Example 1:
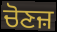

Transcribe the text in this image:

ਚੋਣਜ਼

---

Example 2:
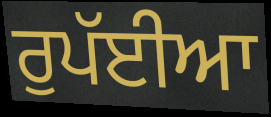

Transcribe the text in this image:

ਰੁਪੱਈਆ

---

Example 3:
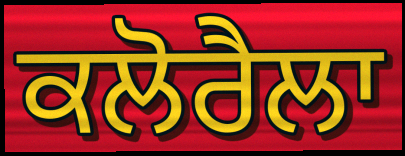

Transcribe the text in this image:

ਕਲੋਰੈਲਾ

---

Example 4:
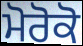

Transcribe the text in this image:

ਮੋਰੋਕੋ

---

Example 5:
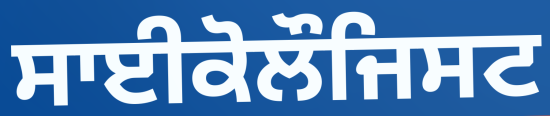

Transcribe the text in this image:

ਸਾਈਕੋਲੌਜਿਸਟ